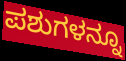
ಪಶುಗಳನ್ನೂ